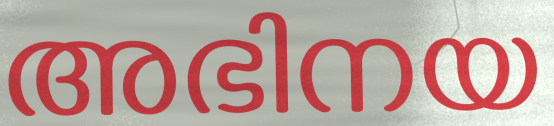
അഭിനയ